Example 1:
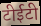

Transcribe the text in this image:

टीईटी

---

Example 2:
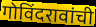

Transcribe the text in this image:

गोविंदरावांची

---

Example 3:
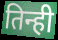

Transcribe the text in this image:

तिन्ही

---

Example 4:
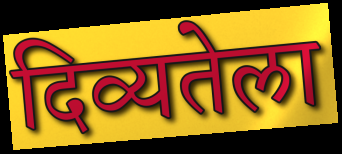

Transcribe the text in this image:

दिव्यतेला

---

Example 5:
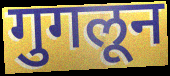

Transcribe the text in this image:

गुगलून